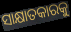
ସାକ୍ଷାତକାରକୁ